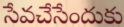
సేవచేసేందుకు